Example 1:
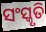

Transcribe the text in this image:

ସଂସ୍କୃତି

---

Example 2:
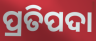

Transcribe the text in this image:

ପ୍ରତିପଦା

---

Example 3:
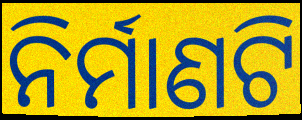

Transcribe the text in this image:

ନିର୍ମାଣଟି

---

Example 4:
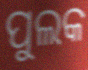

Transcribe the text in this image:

ପୁଲକ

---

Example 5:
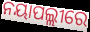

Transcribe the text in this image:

ନୟାପଲ୍ଲୀରେ